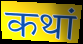
कथां